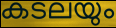
കടലയും